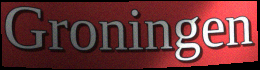
Groningen